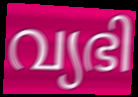
വ്യഭി